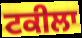
ਟਕੀਲਾ